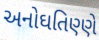
અનોઘતિણ્ણે